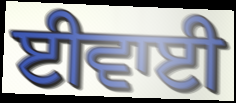
ਈਵਾਈ